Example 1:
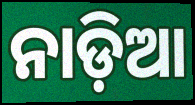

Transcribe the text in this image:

ନାଡ଼ିଆ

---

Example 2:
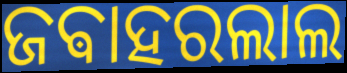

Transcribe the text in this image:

ଜଵାହରଲାଲ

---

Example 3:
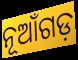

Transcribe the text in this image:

ନୂଆଁଗଡ଼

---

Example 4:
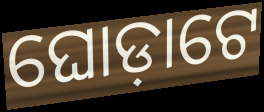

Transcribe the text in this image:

ଘୋଡ଼ାଟେ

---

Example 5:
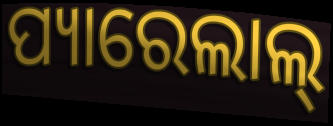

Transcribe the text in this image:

ପ୍ୟାରେଲାଲ୍